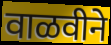
वाळवीने